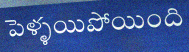
పెళ్ళయిపోయింది